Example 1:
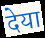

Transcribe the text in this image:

देया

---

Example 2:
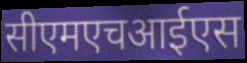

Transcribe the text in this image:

सीएमएचआईएस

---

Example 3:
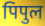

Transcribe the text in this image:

पिपुल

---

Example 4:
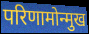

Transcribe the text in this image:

परिणामोन्मुख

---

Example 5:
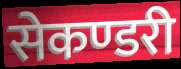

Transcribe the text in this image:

सेकण्‍डरी